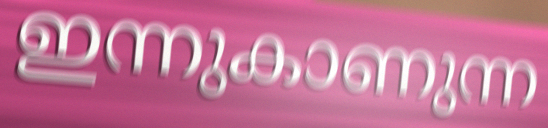
ഇന്നുകാണുന്ന